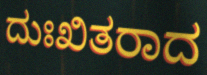
ದುಃಖಿತರಾದ